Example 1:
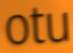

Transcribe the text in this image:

otu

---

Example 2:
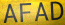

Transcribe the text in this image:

AFAD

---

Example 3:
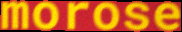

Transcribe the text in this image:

morose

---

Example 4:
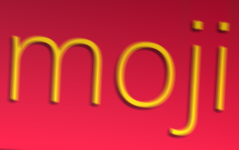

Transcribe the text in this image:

moji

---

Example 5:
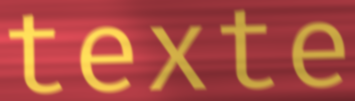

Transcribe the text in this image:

texte